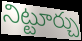
నిట్టూర్చు